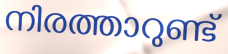
നിരത്താറുണ്ട്